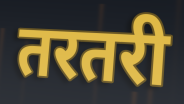
तरतरी